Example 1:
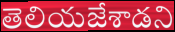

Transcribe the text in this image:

తెలియజేశాడని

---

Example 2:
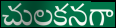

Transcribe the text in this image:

చులకనగా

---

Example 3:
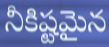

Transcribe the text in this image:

నీకిష్టమైన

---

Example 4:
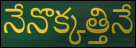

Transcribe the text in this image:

నేనొక్కత్తినే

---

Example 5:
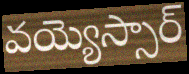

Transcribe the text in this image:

వయ్యెస్సార్